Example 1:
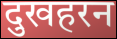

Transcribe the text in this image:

दुखहरन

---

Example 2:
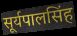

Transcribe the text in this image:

सूर्यपालसिंह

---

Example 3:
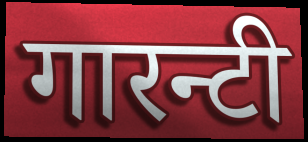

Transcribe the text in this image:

गारन्टी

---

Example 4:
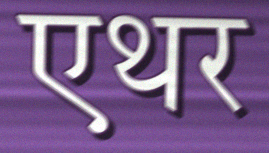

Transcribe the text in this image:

एथर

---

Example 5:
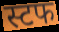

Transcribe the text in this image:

स्टफ